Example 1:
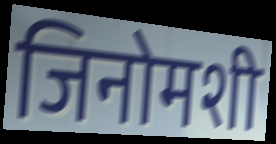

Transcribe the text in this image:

जिनोमशी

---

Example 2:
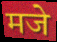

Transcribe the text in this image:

मजे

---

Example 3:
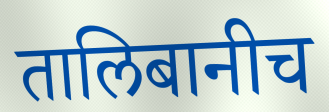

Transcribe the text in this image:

तालिबानीच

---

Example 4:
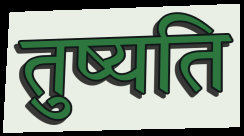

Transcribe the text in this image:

तुष्यति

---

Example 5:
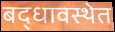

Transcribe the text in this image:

बद्धावस्थेत